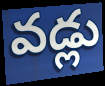
వడ్లు